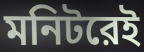
মনিটরেই